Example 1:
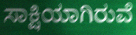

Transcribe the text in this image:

ಸಾಕ್ಷಿಯಾಗಿರುವೆ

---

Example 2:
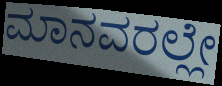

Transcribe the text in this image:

ಮಾನವರಲ್ಲೇ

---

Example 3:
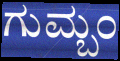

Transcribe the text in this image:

ಗುಮ್ಬಂ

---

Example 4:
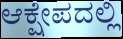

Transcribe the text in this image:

ಆಕ್ಷೇಪದಲ್ಲಿ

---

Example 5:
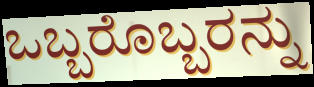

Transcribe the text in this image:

ಒಬ್ಬರೊಬ್ಬರನ್ನು